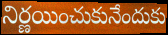
నిర్ణయించుకునేందుకు